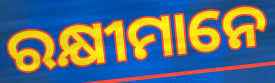
ରକ୍ଷୀମାନେ